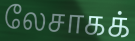
லேசாகக்